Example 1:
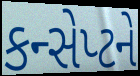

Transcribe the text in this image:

કન્સેપ્ટને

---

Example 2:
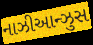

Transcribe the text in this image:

નાઝીઆન્ઝુસ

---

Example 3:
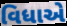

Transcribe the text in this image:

વિધાએ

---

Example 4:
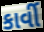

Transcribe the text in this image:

કાર્વી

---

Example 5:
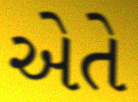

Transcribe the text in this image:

એતે